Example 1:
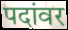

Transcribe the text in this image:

पदांवर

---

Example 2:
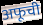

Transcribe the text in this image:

अफूची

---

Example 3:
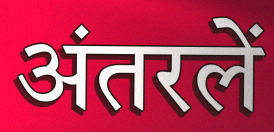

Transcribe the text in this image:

अंतरलें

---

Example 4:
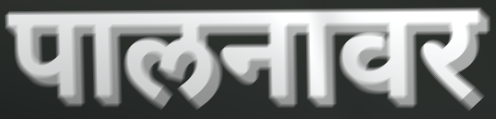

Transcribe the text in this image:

पालनावर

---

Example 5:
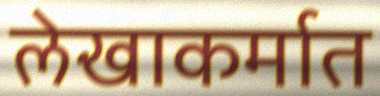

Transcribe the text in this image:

लेखाकर्मात